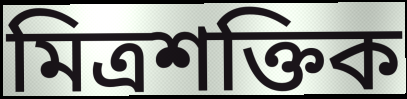
মিত্ৰশক্তিক